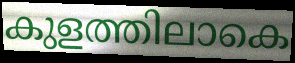
കുളത്തിലാകെ